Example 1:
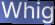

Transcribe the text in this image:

Whig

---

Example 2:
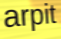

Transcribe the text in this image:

arpit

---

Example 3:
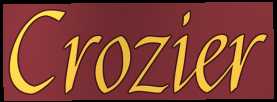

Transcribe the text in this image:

Crozier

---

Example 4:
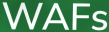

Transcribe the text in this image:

WAFs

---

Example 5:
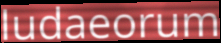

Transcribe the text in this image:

Iudaeorum